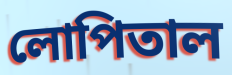
লোপিতাল